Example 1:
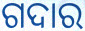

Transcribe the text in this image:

ଗଦାର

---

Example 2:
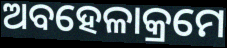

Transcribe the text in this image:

ଅବହେଳାକ୍ରମେ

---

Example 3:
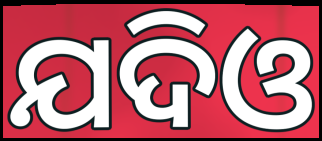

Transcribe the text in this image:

ଯଦିଓ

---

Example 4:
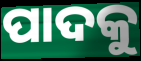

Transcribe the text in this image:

ପାଦକୁ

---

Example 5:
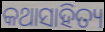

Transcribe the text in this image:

କଥାସାହିତ୍ୟ